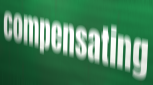
compensating